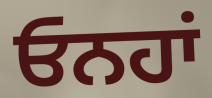
ਓਨਹਾਂ